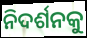
ନିଦର୍ଶନକୁ